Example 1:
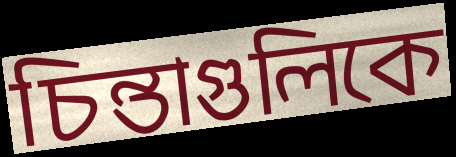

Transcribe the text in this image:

চিন্তাগুলিকে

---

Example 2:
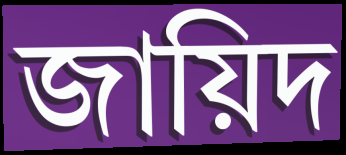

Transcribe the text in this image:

জায়িদ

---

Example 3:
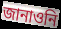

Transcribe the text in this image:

জানাওনি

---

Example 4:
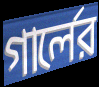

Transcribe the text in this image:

গার্লের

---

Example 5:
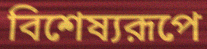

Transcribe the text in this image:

বিশেষ্যরূপে